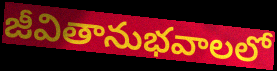
జీవితానుభవాలలో